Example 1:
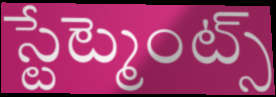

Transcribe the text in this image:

స్టేట్మెంట్స్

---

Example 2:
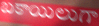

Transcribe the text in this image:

బకాయిలుగా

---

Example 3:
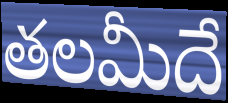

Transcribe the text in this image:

తలమీదే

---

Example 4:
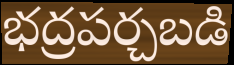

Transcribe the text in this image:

భద్రపర్చబడి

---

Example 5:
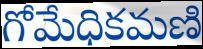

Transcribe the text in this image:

గోమేధికమణి